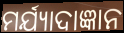
ମର୍ଯ୍ୟାଦାଜ୍ଞାନ